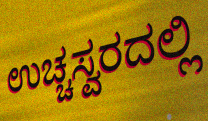
ಉಚ್ಚಸ್ವರದಲ್ಲಿ